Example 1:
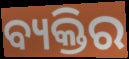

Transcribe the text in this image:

ବ୍ୟକ୍ତିର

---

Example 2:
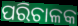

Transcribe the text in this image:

ପରିଚାଳକ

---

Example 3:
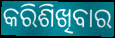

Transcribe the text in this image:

କରିଶିଖିବାର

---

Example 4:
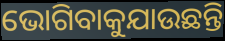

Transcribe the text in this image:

ଭୋଗିବାକୁଯାଉଛନ୍ତି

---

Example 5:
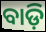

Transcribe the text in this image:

ବାଡ଼ି